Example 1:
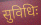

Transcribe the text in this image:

सुविधिः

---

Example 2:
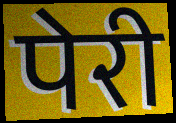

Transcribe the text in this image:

पेरी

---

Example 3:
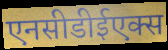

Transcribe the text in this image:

एनसीडीईएक्स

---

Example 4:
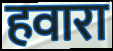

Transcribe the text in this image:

हवारा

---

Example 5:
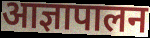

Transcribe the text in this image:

आज्ञापालन